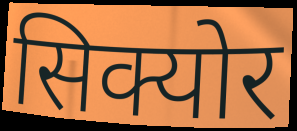
सिक्योर